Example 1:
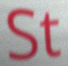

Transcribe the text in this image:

St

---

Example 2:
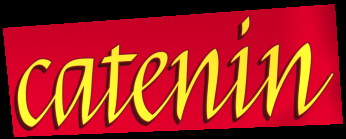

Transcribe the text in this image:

catenin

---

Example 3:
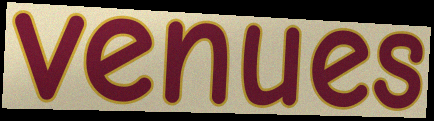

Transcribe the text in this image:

venues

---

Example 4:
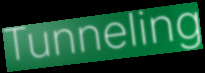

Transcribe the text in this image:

Tunneling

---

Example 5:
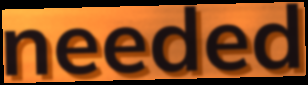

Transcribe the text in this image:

needed